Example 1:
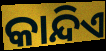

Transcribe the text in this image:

କାନ୍ଦିଏ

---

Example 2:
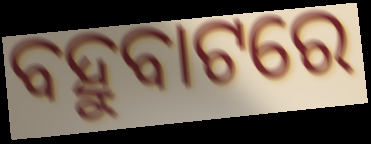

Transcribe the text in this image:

ବହୁବାଟରେ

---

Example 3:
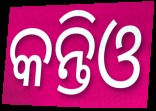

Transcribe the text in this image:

କନ୍ତିଓ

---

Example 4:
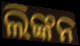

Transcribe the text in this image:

ଲିଙ୍କନ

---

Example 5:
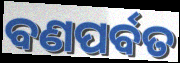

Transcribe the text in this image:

ବଣପର୍ବତ